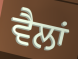
ਵੈਲਾਂ